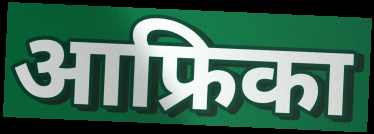
आफ्रिका